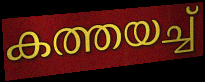
കത്തയച്ച്